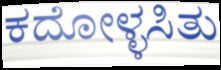
ಕದೋಳ್ಳಸಿತು